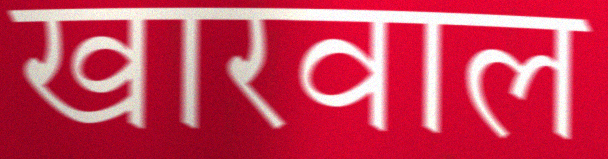
खारवाल